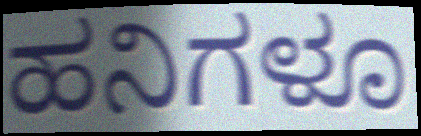
ಹನಿಗಳೂ